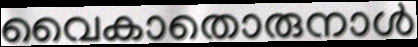
വൈകാതൊരുനാൾ